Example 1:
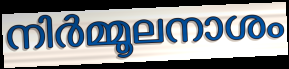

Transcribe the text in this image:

നിർമ്മൂലനാശം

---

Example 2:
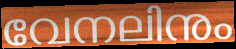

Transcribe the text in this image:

വേനലിനും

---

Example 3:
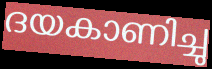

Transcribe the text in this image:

ദയകാണിച്ചു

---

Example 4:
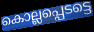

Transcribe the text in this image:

കൊല്ലപ്പെടട്ടെ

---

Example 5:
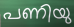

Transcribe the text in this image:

പണിയു